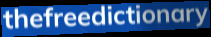
thefreedictionary